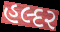
હલ્દર